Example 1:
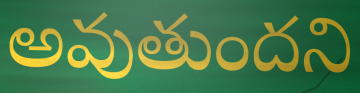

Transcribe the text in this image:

అవుతుందని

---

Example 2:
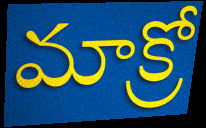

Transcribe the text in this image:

మాక్రో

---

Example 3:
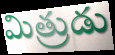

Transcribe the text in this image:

మిత్రుడు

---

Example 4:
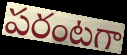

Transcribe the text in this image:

పరంటగా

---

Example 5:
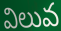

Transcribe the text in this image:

విలువ